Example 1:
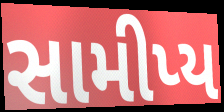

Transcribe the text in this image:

સામીપ્ય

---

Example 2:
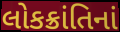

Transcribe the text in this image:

લોકક્રાંતિનાં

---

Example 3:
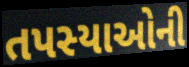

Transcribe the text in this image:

તપસ્યાઓની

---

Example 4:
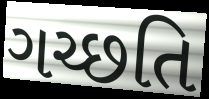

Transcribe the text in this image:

ગચ્છતિ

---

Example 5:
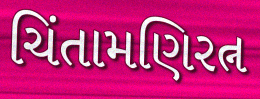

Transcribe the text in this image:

ચિંતામણિરત્ન